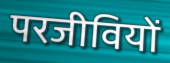
परजीवियों